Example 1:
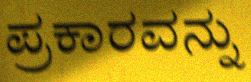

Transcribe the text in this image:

ಪ್ರಕಾರವನ್ನು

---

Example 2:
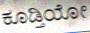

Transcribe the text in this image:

ಕೂಡ್ತಿಯೋ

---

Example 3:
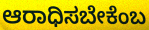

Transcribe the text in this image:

ಆರಾಧಿಸಬೇಕೆಂಬ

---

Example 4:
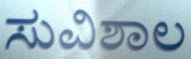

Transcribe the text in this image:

ಸುವಿಶಾಲ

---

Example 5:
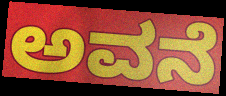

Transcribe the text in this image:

ಅವನೆ